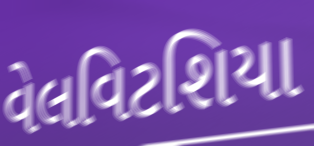
વેલવિટશિયા